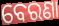
ବେରଣା